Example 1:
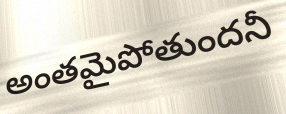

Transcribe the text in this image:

అంతమైపోతుందనీ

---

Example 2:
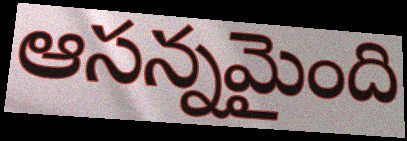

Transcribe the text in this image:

ఆసన్నమైంది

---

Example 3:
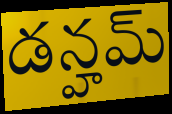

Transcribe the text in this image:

డన్హమ్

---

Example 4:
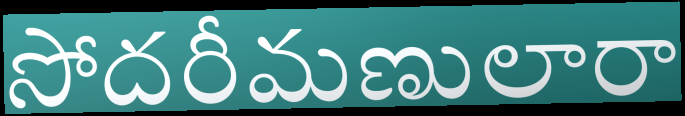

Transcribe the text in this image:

సోదరీమణులారా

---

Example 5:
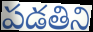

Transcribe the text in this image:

పడతిని